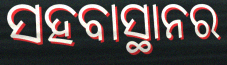
ସହବାସ୍ଥାନର